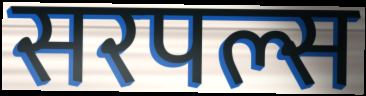
सरपल्स